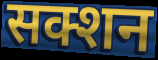
सक्शन